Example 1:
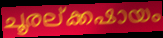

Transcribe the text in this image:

ചൂരല്ക്കഷായം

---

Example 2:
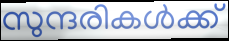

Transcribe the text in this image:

സുന്ദരികൾക്ക്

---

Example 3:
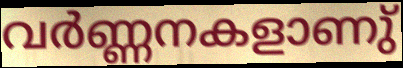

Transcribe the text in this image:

വർണ്ണനകളാണു്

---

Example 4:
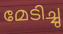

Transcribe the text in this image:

മേടിച്ചു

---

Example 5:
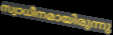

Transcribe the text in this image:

സ്വാധീനമായിരുന്നു